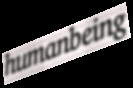
humanbeing